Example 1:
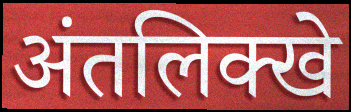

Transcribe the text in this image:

अंतलिक्खे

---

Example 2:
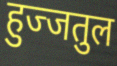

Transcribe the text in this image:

हुज्जतुल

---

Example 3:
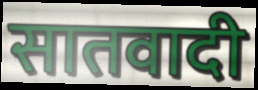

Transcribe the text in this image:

सातवादी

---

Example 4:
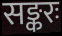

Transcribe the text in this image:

सङ्करः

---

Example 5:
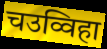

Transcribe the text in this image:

चउव्विहा